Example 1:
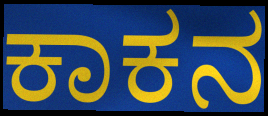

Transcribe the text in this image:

ಕಾಕನ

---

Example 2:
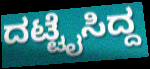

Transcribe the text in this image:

ದಟ್ಟೈಸಿದ್ದ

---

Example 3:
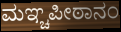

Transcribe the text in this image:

ಮಞ್ಚಪೀಠಾನಂ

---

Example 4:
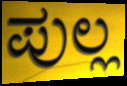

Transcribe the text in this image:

ಪುಲ್ಲ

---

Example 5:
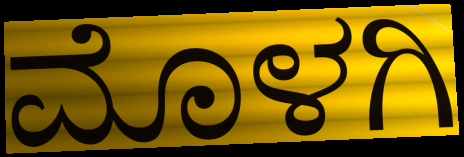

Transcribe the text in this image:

ಮೊಳಗಿ